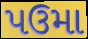
પઉમા